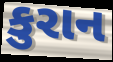
કુરાન